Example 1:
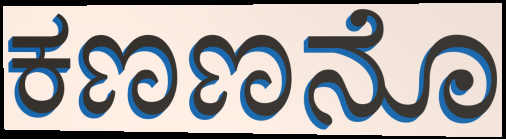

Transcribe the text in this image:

ಕಣಣನೊ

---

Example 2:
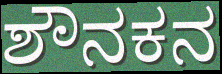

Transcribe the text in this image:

ಶೌನಕನ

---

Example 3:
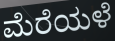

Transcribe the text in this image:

ಮೆರೆಯಳೆ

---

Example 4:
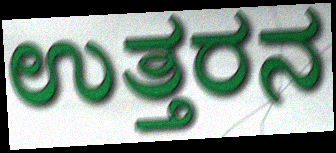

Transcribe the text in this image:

ಉತ್ತರನ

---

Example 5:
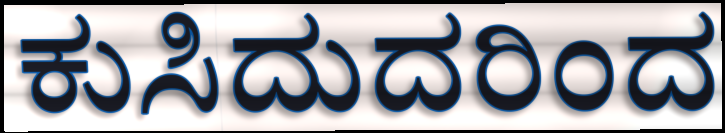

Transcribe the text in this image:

ಕುಸಿದುದರಿಂದ